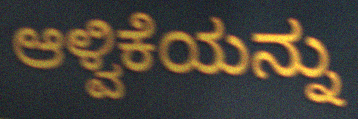
ಆಳ್ವಿಕೆಯನ್ನು